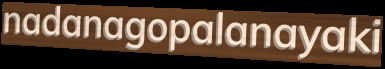
nadanagopalanayaki